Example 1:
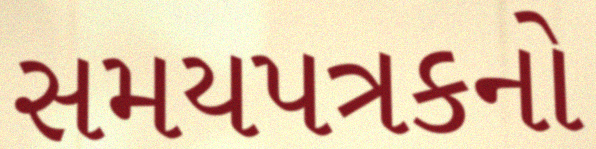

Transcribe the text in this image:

સમયપત્રકનો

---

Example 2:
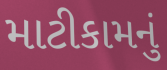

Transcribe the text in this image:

માટીકામનું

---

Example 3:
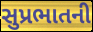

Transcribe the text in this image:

સુપ્રભાતની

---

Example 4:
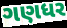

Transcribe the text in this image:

ગણધર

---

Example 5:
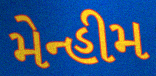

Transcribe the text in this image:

મેન્હીમ